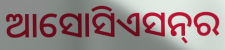
ଆସୋସିଏସନ୍‍ର